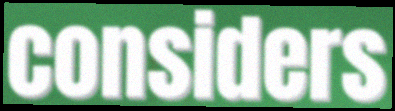
considers